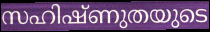
സഹിഷ്ണുതയുടെ